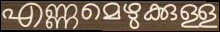
എണ്ണമെഴുക്കുള്ള